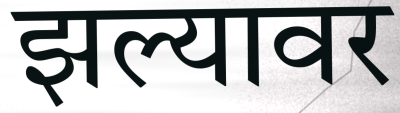
झल्यावर